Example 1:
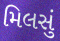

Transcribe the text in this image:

મિલસું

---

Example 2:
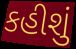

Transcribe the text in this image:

કહીશું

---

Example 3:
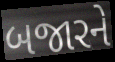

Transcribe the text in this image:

બજારને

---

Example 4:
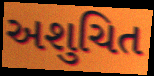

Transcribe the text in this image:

અશુચિત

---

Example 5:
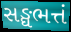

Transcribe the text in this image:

સઙ્ઘભત્તં